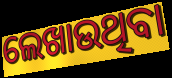
ଲେଖାଉଥିବା